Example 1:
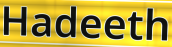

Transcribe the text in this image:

Hadeeth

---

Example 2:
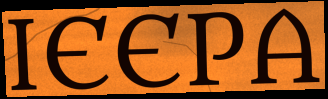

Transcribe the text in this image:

IEEPA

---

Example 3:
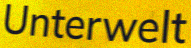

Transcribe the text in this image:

Unterwelt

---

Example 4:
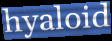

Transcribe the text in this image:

hyaloid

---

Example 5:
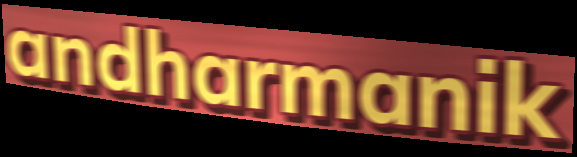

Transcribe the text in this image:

andharmanik